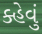
ક્હેવું